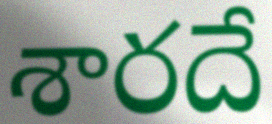
శారదే